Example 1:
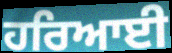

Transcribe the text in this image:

ਹਰਿਆਈ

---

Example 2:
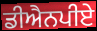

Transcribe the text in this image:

ਡੀਐਨਪੀਏ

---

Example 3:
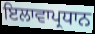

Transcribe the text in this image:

ਇਲਾਵਾਪ੍ਰਧਾਨ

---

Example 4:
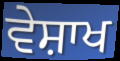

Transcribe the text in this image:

ਵੇਸ਼ਾਖ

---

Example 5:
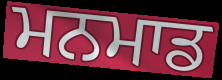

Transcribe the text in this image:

ਮਨਮਾਡ